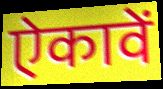
ऐकावें